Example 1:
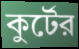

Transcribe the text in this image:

কুর্টের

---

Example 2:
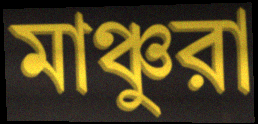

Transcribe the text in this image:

মাঞ্চুরা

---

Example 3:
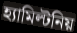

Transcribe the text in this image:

হ্যামিল্টনিয়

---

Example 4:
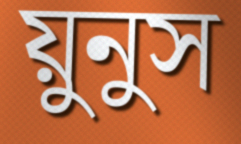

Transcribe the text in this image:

য়ুনুস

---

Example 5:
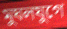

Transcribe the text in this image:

মুঘলযুগে